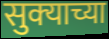
सुक्‍याच्या